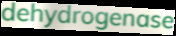
dehydrogenase